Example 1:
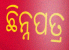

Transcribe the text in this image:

ଛିନ୍ନପତ୍ର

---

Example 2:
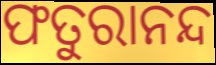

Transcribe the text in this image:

ଫତୁରାନନ୍ଦ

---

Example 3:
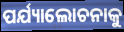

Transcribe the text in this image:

ପର୍ଯ୍ୟାଲୋଚନାକୁ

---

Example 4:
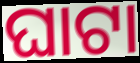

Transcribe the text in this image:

ଘାଟା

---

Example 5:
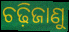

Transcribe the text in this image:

ଚଢ଼ିଜାଣୁ